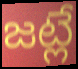
జట్లే